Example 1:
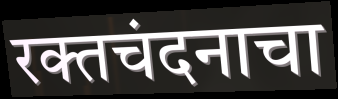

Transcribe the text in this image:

रक्तचंदनाचा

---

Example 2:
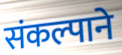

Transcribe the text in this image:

संकल्पाने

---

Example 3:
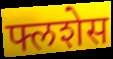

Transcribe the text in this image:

फ्लशेस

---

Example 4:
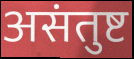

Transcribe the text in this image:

असंतुष्ट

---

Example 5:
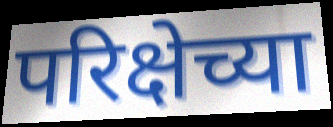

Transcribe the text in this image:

परिक्षेच्या